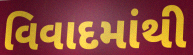
વિવાદમાંથી